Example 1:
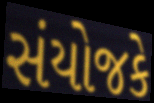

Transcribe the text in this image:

સંયોજકે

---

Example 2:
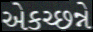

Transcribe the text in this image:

એકચ્છન્ને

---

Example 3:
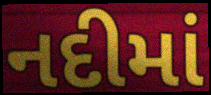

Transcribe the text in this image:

નદીમાં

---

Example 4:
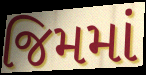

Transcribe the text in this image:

જિમમાં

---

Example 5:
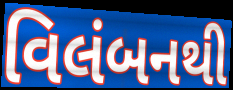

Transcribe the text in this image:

વિલંબનથી